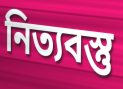
নিত্যবস্তু